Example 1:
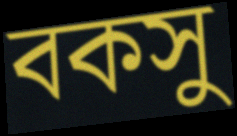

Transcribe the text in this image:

বকসু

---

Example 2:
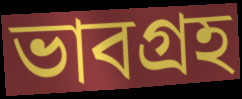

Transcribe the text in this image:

ভাবগ্রহ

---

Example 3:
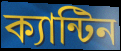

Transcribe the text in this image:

ক্যান্টিন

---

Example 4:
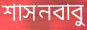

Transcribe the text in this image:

শাসনবাবু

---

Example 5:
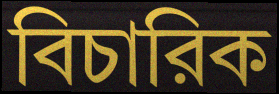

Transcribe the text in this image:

বিচারিক